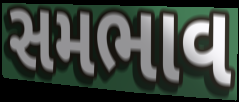
સમભાવ